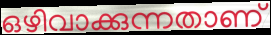
ഒഴിവാക്കുന്നതാണ്